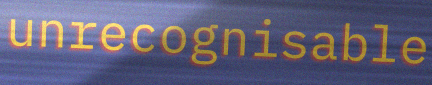
unrecognisable